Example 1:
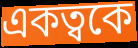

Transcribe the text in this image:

একত্বকে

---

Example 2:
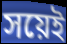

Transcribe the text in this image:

সয়েই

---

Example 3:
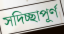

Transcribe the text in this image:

সদিচ্ছাপূর্ণ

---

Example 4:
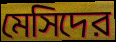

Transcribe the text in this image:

মেসিদের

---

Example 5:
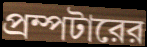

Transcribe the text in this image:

প্রম্পটারের